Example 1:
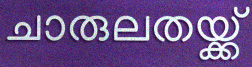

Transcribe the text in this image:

ചാരുലതയ്ക്ക്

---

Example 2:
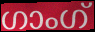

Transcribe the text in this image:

ഗാംഗ്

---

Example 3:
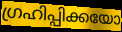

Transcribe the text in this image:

ഗ്രഹിപ്പിക്കയോ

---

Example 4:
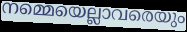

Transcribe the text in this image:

നമ്മെയെല്ലാവരെയും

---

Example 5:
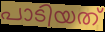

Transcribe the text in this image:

പാടിയത്